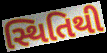
સ્થિતિથી